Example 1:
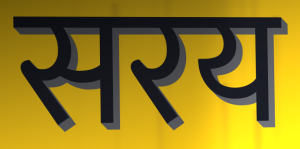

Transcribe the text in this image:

सरय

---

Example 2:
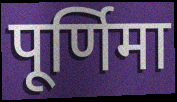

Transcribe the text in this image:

पूर्णिमा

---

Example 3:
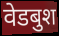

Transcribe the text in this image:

वेडबुश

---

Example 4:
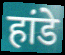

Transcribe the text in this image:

हांडे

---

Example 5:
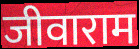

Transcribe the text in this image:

जीवाराम